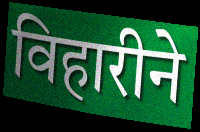
विहारीने